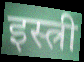
इस्त्री